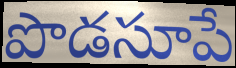
పొడసూపే